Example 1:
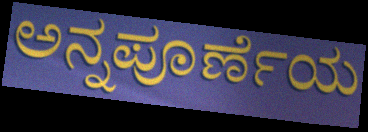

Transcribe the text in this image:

ಅನ್ನಪೂರ್ಣೆಯ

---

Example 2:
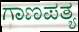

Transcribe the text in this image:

ಗಾಣಪತ್ಯ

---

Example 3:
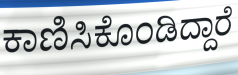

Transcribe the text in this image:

ಕಾಣಿಸಿಕೊಂಡಿದ್ದಾರೆ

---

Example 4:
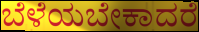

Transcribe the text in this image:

ಬೆಳೆಯಬೇಕಾದರೆ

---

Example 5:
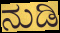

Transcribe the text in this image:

ನುಡಿ